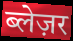
ब्लेज़र